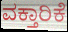
ವಕ್ತಾರಿಕೆ